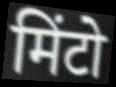
मिंटो